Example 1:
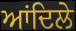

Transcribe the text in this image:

ਆਂਦਿਲੇ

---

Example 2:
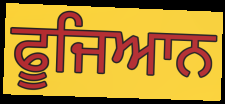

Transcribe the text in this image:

ਫੂਜਿਆਨ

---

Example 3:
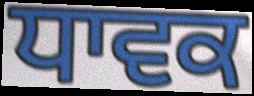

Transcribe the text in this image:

ਧਾਵਕ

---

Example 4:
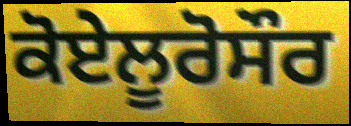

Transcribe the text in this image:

ਕੋਏਲੂਰੋਸੌਰ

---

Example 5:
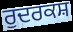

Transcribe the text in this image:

ਰੁਦਰਕਸ਼